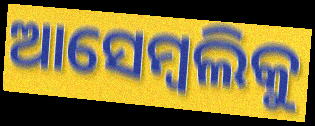
ଆସେମ୍ବଲିକୁ